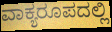
ವಾಕ್ಯರೂಪದಲ್ಲಿ